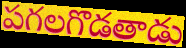
పగలగొడతాడు